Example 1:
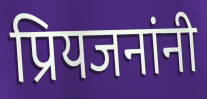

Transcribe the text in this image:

प्रियजनांनी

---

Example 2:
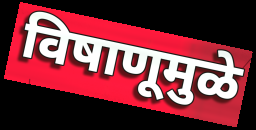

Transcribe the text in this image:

विषाणूमुळे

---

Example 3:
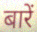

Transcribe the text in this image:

बारें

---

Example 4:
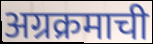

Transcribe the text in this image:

अग्रक्रमाची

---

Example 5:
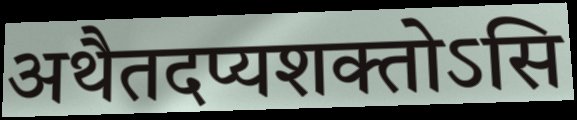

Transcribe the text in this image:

अथैतदप्यशक्तोऽसि